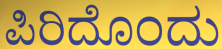
ಪಿರಿದೊಂದು